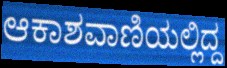
ಆಕಾಶವಾಣಿಯಲ್ಲಿದ್ದ